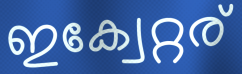
ഇക്വേറ്റര്